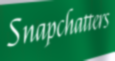
Snapchatters